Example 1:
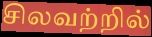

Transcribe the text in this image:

சிலவற்றில்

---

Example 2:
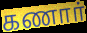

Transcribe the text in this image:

கணார்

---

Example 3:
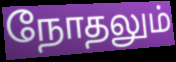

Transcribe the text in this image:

நோதலும்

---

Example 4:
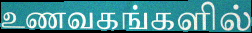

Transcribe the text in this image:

உணவகங்களில்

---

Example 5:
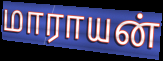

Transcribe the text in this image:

மாராயன்